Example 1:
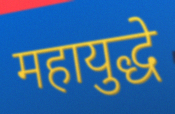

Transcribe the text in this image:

महायुद्धे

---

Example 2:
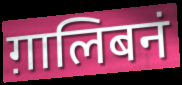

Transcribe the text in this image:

ग़ालिबनं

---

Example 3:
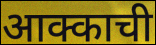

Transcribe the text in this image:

आक्काची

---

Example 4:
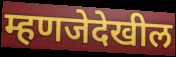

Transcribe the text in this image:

म्हणजेदेखील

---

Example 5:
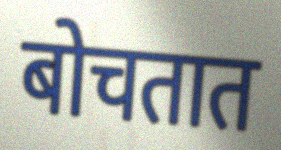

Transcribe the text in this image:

बोचतात